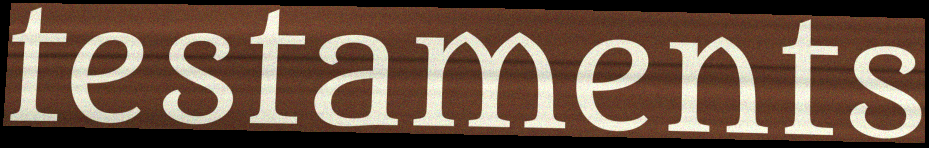
testaments